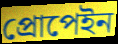
প্রোপেইন